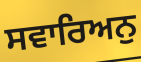
ਸਵਾਰਿਅਨੁ